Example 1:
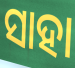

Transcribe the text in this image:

ସାହା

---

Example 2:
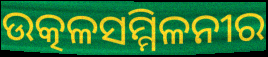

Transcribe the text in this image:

ଉତ୍କଳସମ୍ମିଳନୀର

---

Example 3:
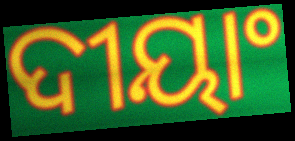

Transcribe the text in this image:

ଦୀୟାଂ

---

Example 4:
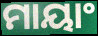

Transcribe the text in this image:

ମାୟାଂ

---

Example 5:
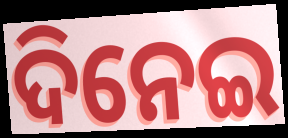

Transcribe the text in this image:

ଦିନେଇ